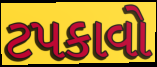
ટપકાવો